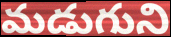
మడుగుని